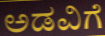
ಅಡವಿಗೆ